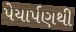
પેયાર્પણથી